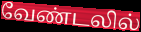
வேண்டலில்